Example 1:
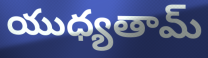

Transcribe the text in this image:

యుధ్యతామ్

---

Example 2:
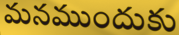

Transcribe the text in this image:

మనముందుకు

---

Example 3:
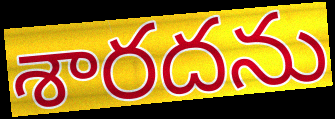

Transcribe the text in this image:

శారదను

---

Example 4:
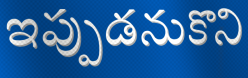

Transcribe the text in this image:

ఇప్పుడనుకొని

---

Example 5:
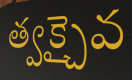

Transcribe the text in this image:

త్వక్చైవ